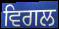
ਵਿਗਲ